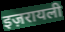
इज़रायली